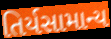
તિર્યસામાન્ય